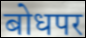
बोधपर